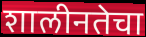
शालीनतेचा